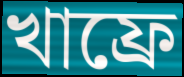
খাফ্রে